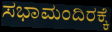
ಸಭಾಮಂದಿರಕ್ಕೆ